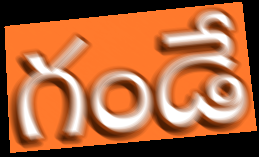
గండే